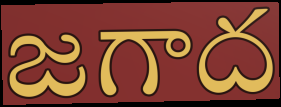
జగాద